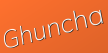
Ghuncha